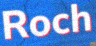
Roch